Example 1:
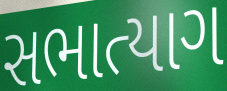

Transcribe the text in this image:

સભાત્યાગ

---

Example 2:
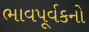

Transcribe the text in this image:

ભાવપૂર્વકનો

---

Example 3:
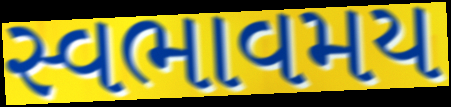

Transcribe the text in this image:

સ્વભાવમય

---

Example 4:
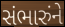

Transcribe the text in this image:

સંભારુંને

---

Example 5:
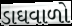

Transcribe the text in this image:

ડાઘવાળો